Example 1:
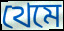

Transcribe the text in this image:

থেমে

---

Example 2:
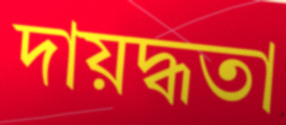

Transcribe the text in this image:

দায়দ্ধতা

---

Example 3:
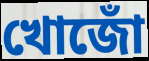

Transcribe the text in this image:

খোজোঁ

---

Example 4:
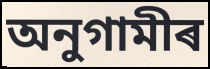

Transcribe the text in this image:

অনুগামীৰ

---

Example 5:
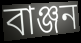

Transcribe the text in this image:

বাঞ্জন